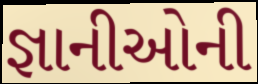
જ્ઞાનીઓની